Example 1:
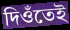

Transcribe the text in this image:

দিওঁতেই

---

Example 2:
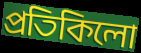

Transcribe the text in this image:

প্ৰতিকিলো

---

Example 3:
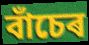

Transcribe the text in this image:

বাঁচেৰ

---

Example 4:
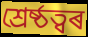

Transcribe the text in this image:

শ্ৰেষ্ঠত্বৰ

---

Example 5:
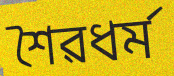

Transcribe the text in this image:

শৈৱধৰ্ম